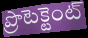
ప్రొటెక్టెంట్